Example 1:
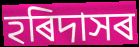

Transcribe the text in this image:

হৰিদাসৰ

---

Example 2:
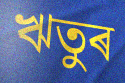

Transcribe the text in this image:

ঋতুৰ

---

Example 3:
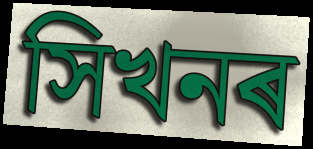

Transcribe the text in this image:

সিখনৰ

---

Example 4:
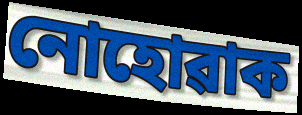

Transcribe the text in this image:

নোহোৱাক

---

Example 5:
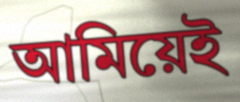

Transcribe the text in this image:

আমিয়েই